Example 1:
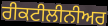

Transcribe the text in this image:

ਰੀਕਟੀਲੀਨੀਅਰ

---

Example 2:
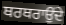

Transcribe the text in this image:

ਥਰਥਰਾਉਂਦੇ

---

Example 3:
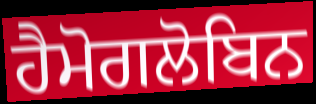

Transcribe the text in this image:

ਹੈਮੋਗਲੋਬਿਨ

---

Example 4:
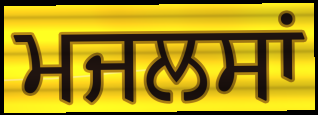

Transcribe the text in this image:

ਮਜਲਸਾਂ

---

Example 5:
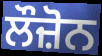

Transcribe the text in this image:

ਲੌਜ਼ੋਨ